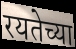
रयतेच्या